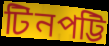
টিনপট্টি